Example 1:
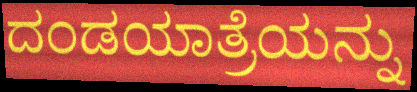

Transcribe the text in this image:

ದಂಡಯಾತ್ರೆಯನ್ನು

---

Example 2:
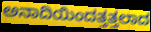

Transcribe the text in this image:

ಅನಾದಿಯಿಂದತ್ತತ್ತಲಾದ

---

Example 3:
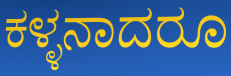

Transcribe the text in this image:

ಕಳ್ಳನಾದರೂ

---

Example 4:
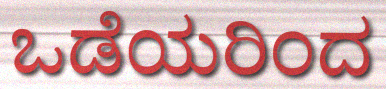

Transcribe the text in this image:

ಒಡೆಯರಿಂದ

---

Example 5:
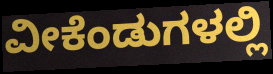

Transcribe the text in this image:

ವೀಕೆಂಡುಗಳಲ್ಲಿ